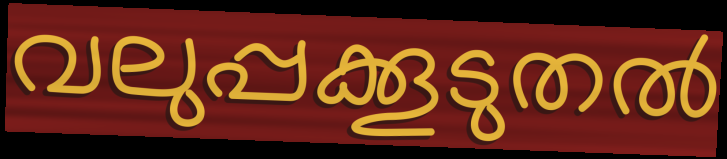
വലുപ്പക്കൂടുതൽ